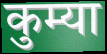
कुम्या